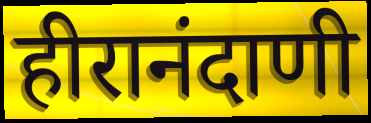
हीरानंदाणी